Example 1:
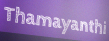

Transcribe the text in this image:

Thamayanthi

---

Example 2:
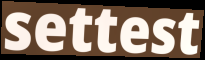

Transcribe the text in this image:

settest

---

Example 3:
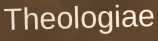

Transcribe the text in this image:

Theologiae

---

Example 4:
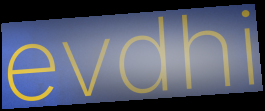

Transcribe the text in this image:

evdhi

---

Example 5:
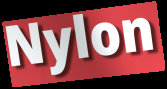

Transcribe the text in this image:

Nylon